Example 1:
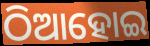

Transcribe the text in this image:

ଠିଆହୋଇ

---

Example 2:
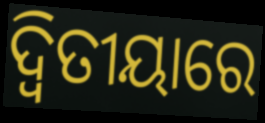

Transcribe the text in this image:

ଦ୍ୱିତୀୟାରେ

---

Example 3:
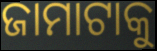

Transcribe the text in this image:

ଜାମାଟାକୁ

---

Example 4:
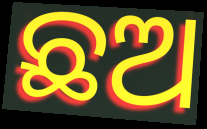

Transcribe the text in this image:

ଛଅ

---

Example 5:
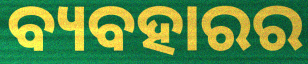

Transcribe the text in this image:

ବ୍ୟବହାରର